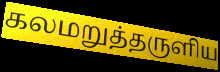
கலமறுத்தருளிய